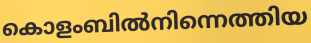
കൊളംബിൽനിന്നെത്തിയ